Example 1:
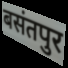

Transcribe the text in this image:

बसंतपुर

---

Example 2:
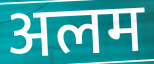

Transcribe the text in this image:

अलम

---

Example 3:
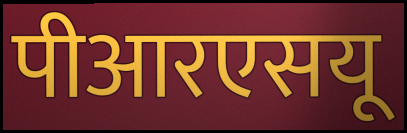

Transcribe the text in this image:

पीआरएसयू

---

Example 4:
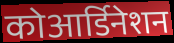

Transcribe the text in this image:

कोआर्डिनेशन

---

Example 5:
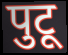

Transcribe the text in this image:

पुटू